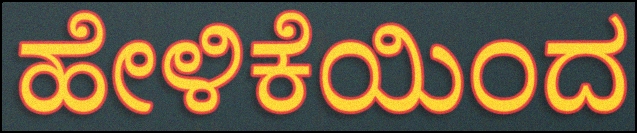
ಹೇಳಿಕೆಯಿಂದ